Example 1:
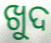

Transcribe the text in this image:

ଖୁଦ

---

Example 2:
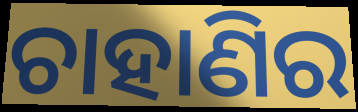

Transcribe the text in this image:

ଚାହାଣିର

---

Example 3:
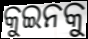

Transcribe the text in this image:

କୁଇନକୁ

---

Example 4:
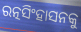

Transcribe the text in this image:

ରତ୍ନସିଂହାସନକୁ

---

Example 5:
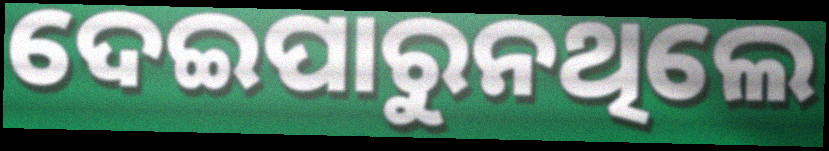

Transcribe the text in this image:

ଦେଇପାରୁନଥିଲେ